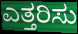
ಎತ್ತರಿಸು